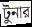
টুনার